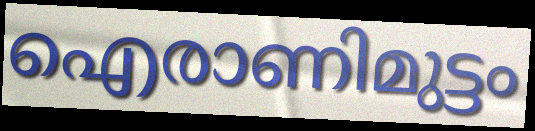
ഐരാണിമുട്ടം